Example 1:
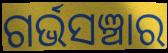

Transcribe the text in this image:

ଗର୍ଭସଞ୍ଚାର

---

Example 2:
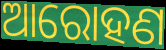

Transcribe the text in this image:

ଆରୋହଣ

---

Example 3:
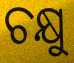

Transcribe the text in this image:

ଚକ୍ଷୁ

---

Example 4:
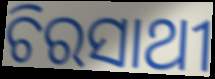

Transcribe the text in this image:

ଚିରସାଥୀ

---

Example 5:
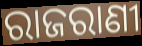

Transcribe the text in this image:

ରାଜରାଣୀ